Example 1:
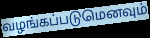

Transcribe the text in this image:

வழங்கப்படுமெனவும்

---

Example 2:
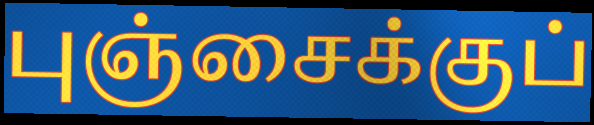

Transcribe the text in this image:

புஞ்சைக்குப்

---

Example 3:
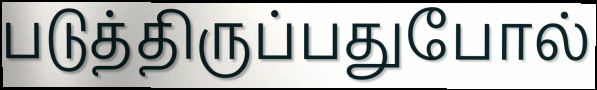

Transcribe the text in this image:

படுத்திருப்பதுபோல்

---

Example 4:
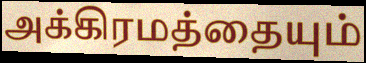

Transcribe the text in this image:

அக்கிரமத்தையும்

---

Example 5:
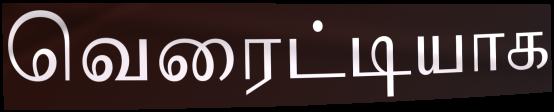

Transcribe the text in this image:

வெரைட்டியாக